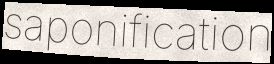
saponification